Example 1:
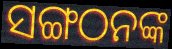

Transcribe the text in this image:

ସଙ୍ଗଠନଙ୍କ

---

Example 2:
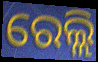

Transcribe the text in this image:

ରେଲ୍ଲି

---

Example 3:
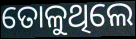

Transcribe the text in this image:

ତୋଳୁଥିଲେ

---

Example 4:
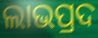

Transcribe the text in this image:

ଲାଭପ୍ରଦ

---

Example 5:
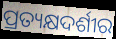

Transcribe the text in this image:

ପ୍ରତ୍ୟକ୍ଷଦର୍ଶୀର